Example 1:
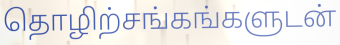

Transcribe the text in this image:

தொழிற்சங்கங்களுடன்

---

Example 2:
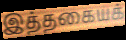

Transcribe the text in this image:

இத்தகையக்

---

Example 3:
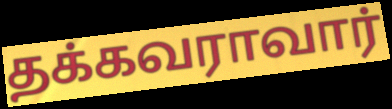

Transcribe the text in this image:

தக்கவராவார்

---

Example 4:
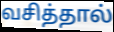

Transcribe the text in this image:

வசித்தால்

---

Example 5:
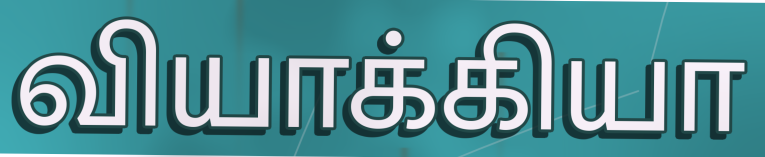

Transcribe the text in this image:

வியாக்கியா